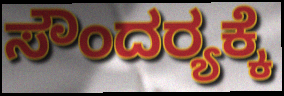
ಸೌಂದರ‍್ಯಕ್ಕೆ